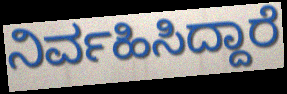
ನಿರ್ವಹಿಸಿದ್ದಾರೆ